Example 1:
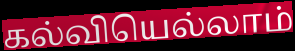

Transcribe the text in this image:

கல்வியெல்லாம்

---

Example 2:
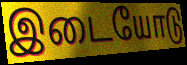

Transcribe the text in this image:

இடையோடு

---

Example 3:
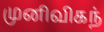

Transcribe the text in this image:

முனிவிகந்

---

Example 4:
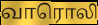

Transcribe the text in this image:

வாரொலி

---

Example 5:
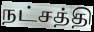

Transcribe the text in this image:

நட்சத்தி